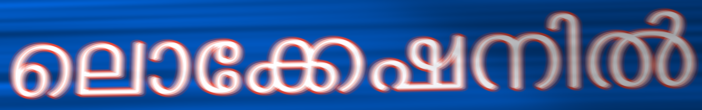
ലൊക്കേഷനിൽ